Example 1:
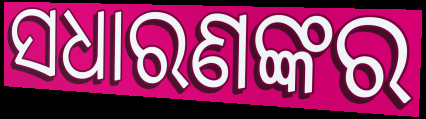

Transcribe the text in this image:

ସଧାରଣଙ୍କର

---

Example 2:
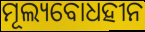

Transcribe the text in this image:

ମୂଲ୍ୟବୋଧହୀନ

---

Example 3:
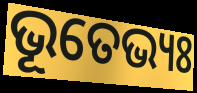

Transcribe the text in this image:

ଭୂତେଭ୍ୟଃ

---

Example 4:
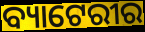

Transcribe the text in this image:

ବ୍ୟାଟେରୀର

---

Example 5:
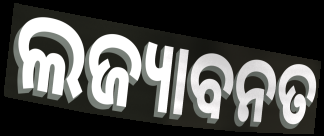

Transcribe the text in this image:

ଲଜ୍ୟାବନତ